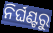
ନିର୍ଘଣ୍ଟରୁ